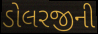
ડોલરજીની